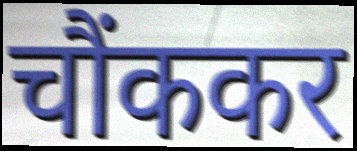
चौंककर